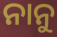
ନାନୁ